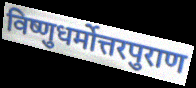
विष्णुधर्मोत्तरपुराण